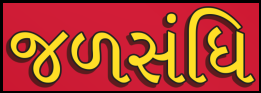
જળસંધિ